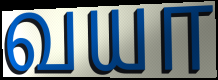
வயா